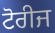
ਟੋਰੀਜ